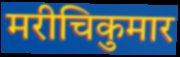
मरीचिकुमार